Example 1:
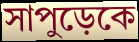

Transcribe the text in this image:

সাপুড়েকে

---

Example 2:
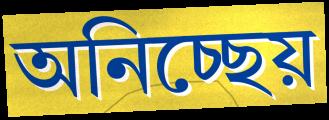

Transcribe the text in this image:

অনিচ্ছেয়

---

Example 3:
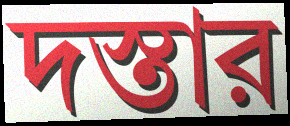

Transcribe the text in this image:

দস্তার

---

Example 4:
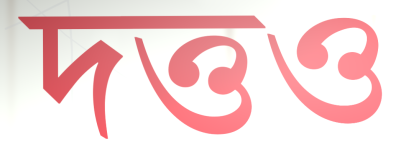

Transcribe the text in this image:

দত্তও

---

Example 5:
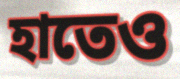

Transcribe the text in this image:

হাতেও